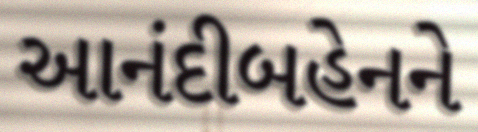
આનંદીબહેનને